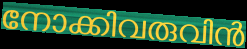
നോക്കിവരുവിൻ